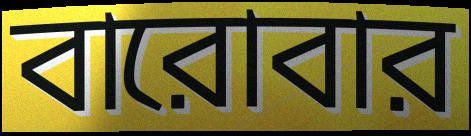
বারোবার